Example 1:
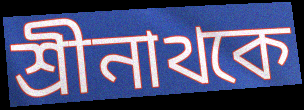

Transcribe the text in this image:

শ্রীনাথকে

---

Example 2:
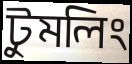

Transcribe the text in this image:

টুমলিং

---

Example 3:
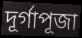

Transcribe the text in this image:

দূর্গাপূজা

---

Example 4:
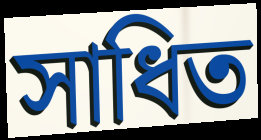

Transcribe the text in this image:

সাধিত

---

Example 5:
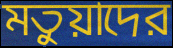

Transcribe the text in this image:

মতুয়াদের